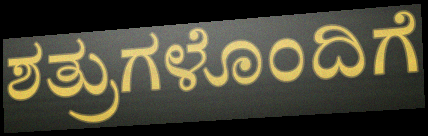
ಶತ್ರುಗಳೊಂದಿಗೆ